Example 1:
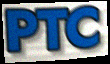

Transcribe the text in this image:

PTC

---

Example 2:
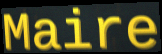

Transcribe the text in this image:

Maire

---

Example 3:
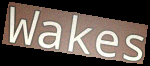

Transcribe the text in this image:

Wakes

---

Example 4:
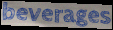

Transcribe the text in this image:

beverages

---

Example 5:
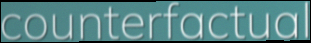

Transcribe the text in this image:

counterfactual